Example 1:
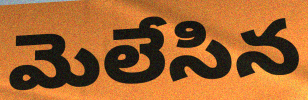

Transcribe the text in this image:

మెలేసిన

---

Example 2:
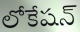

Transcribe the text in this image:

లోకేషన్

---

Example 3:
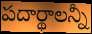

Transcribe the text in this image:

పదార్థాలన్నీ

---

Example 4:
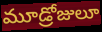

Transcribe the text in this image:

మూడ్రోజులూ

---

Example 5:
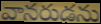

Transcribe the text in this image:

వానరుడను